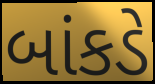
બાંકડે